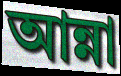
আন্না